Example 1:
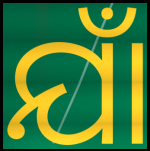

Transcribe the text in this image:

ଯାଁ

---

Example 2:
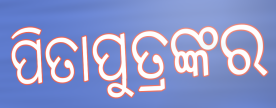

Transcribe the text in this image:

ପିତାପୁତ୍ରଙ୍କର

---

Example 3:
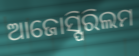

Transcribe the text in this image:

ଆଜୋସ୍ପିରିଲମ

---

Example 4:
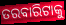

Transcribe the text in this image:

ତରବାରିଟାକୁ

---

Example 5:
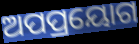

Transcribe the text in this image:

ଅପପ୍ରୟୋଗ